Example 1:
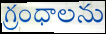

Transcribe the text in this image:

గ్రంధాలను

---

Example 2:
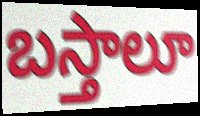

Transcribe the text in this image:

బస్తాలూ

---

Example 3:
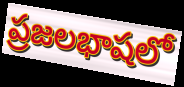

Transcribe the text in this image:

ప్రజలభాషలో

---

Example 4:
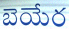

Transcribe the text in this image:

బెయేర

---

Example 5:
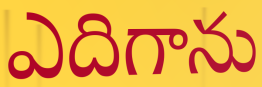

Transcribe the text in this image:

ఎదిగాను